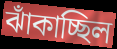
ঝাঁকাচ্ছিল